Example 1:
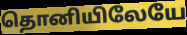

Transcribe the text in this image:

தொனியிலேயே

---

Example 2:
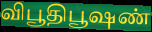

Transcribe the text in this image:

விபூதிபூஷண்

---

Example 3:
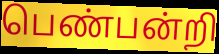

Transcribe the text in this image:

பெண்பன்றி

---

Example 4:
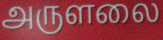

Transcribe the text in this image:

அருளலை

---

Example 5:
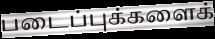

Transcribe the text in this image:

படைப்புக்களைக்